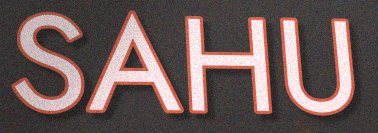
SAHU